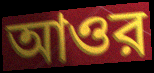
আওর